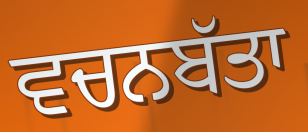
ਵਚਨਬੱਤਾ